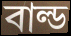
বাল্ড